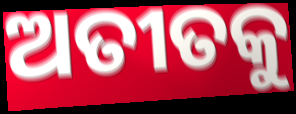
ଅତୀତକୁ